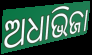
ଅଧାଭିଜା